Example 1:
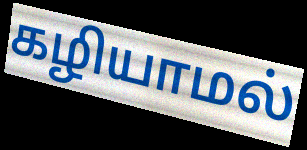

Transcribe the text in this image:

கழியாமல்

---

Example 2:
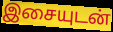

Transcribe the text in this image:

இசையுடன்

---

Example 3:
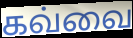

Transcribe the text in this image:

கவ்வை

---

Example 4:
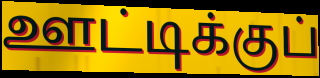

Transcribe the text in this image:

ஊட்டிக்குப்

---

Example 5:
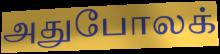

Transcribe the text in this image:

அதுபோலக்